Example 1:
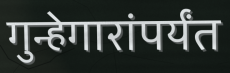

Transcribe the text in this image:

गुन्हेगारांपर्यंत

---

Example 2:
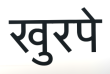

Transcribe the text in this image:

खुरपे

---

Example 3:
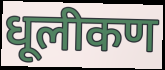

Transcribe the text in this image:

धूलीकण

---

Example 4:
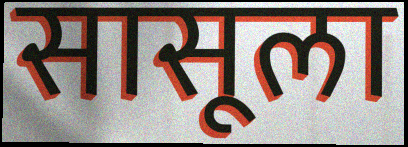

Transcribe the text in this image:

सासूला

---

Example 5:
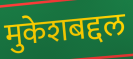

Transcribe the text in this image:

मुकेशबद्दल